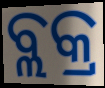
ବ୍ଲକ୍ର